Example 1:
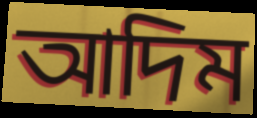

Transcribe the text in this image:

আদিম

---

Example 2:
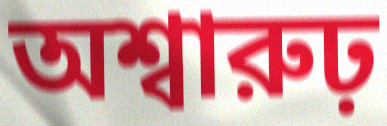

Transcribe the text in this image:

অশ্বারুঢ়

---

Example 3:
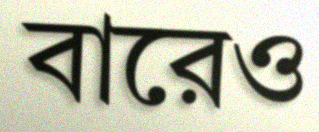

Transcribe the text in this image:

বারেও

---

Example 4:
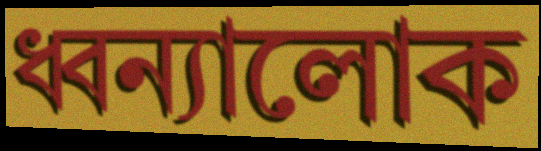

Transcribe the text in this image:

ধ্বন্যালোক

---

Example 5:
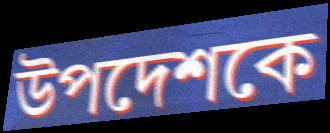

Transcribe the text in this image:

উপদেশকে